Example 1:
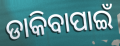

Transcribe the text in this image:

ଡାକିବାପାଇଁ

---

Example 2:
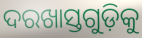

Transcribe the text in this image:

ଦରଖାସ୍ତଗୁଡ଼ିକୁ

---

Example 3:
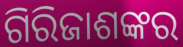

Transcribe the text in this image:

ଗିରିଜାଶଙ୍କର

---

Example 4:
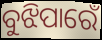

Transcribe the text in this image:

ବୁଝିପାରେଁ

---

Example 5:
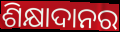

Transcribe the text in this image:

ଶିକ୍ଷାଦାନର